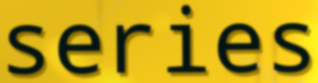
series